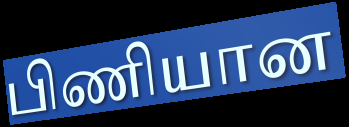
பிணியான